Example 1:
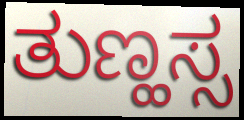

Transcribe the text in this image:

ತುಣ್ಹಸ್ಸ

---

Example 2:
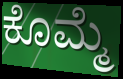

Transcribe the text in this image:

ಕೊಮ್ಮೆ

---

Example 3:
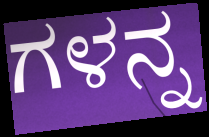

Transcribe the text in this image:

ಗಳನ್ನ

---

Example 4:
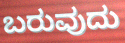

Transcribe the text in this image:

ಬರುವುದು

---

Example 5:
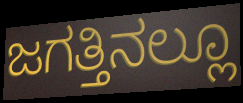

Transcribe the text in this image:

ಜಗತ್ತಿನಲ್ಲೂ